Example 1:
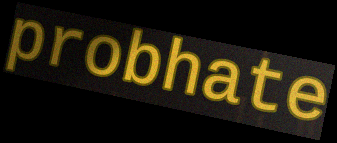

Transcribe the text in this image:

probhate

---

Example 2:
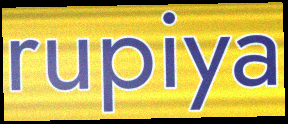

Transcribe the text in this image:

rupiya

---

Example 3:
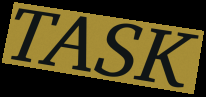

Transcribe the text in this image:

TASK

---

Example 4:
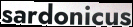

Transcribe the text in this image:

sardonicus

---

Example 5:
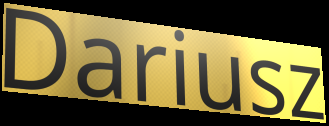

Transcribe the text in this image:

Dariusz